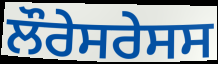
ਲੌਰੇਸਰੇਸਸ